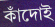
কাঁদোই